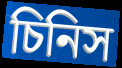
চিনিস